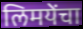
लिमयेंचा